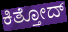
ಕಿತ್ತೋದ್